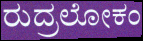
ರುದ್ರಲೋಕಂ